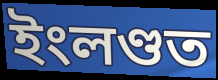
ইংলণ্ডত